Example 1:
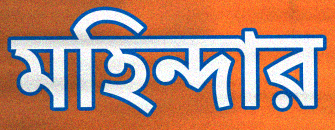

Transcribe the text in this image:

মহিন্দার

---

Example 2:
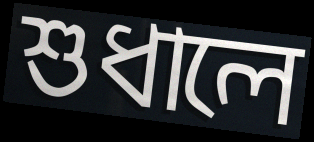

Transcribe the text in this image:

শুধালে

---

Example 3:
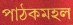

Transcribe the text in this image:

পাঠকমহল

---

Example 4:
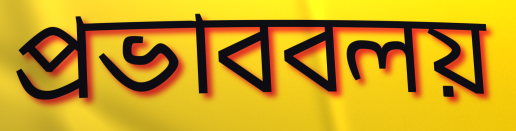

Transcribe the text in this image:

প্রভাববলয়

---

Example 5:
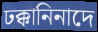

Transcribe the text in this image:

ঢক্কানিনাদে